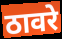
ठावरे